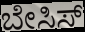
ಬೇಸಿಸ್